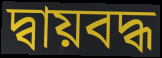
দ্বায়বদ্ধ